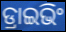
ଡ୍ରାଇଭିଂ